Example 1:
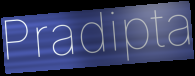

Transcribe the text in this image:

Pradipta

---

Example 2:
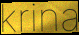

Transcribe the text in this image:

krina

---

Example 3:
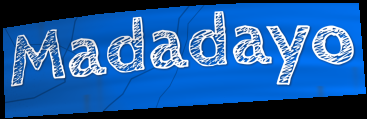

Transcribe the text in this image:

Madadayo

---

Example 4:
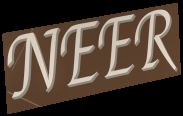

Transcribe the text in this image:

NEER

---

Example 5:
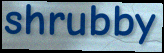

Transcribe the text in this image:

shrubby